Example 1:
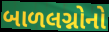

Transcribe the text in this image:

બાળલગ્નોનો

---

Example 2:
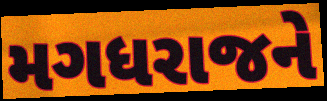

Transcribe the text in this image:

મગધરાજને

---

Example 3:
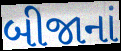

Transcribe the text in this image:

બીજાનાં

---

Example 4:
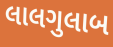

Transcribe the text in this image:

લાલગુલાબ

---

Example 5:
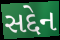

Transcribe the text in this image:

સદ્દેન